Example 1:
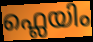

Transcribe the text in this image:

ഫ്ലെയിം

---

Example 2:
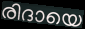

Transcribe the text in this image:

രിദായെ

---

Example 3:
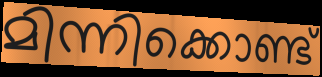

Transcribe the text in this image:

മിന്നിക്കൊണ്ട്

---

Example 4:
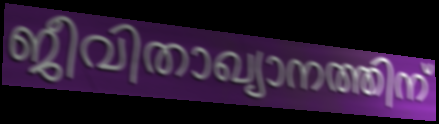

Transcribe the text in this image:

ജീവിതാഖ്യാനത്തിന്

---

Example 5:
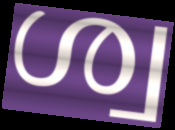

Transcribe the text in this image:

ശ്വ